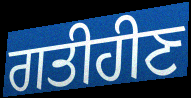
ਗਤੀਹੀਣ